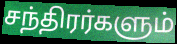
சந்திரர்களும்